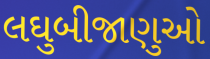
લઘુબીજાણુઓ